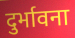
दुर्भावना